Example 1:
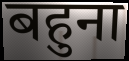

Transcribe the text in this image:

बहुना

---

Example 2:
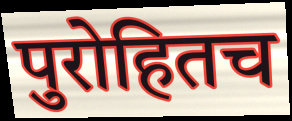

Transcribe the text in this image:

पुरोहितच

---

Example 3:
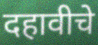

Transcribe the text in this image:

दहावीचे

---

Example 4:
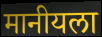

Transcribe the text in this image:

मानीयला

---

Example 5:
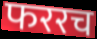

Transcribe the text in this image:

फररच